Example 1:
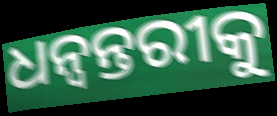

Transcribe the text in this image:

ଧନ୍ବନ୍ତରୀକୁ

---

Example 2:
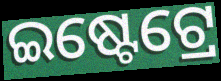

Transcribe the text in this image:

ଇଷ୍ଟେଟ୍ରେ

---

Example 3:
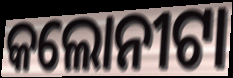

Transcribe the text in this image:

କଲୋନୀଟା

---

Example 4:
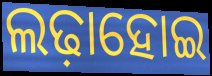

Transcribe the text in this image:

ଲଢ଼ାହୋଇ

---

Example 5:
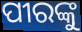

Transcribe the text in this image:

ପୀରଙ୍କୁ